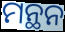
ମନ୍ଥନ